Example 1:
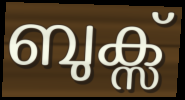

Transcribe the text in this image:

ബുക്സ്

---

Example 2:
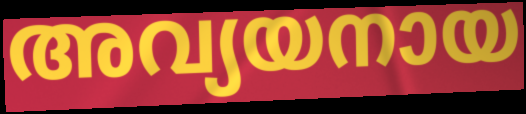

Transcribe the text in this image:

അവ്യയനായ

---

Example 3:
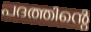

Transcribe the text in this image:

പദത്തിന്റെ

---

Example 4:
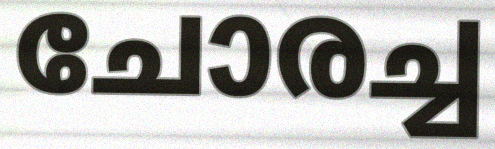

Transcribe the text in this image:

ചോരച്ച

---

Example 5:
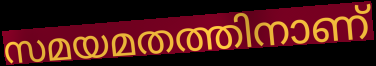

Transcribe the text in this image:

സമയമതത്തിനാണ്